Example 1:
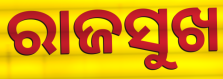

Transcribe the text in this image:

ରାଜସୁଖ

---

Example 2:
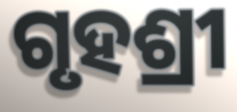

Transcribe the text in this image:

ଗୃହଶ୍ରୀ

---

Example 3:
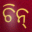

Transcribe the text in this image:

ଚିନ୍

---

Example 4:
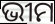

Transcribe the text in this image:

ଭୀମ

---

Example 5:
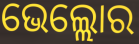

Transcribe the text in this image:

ଭେଲ୍ଲୋର